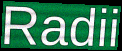
Radii